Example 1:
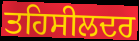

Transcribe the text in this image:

ਤਹਿਸੀਲਦਰ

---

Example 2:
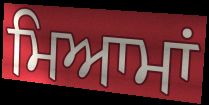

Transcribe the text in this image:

ਮਿਆਮਾਂ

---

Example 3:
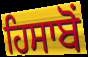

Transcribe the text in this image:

ਹਿਸਾਬੋਂ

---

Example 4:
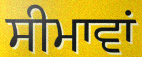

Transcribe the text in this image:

ਸੀਮਾਵਾਂ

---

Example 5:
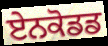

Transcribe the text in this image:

ਏਨਕੋਡਡ